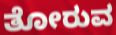
ತೋರುವ